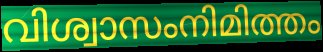
വിശ്വാസംനിമിത്തം